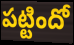
పట్టిందో